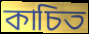
কাচিত